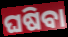
ଘଷିବା